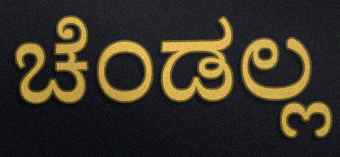
ಚೆಂಡಲ್ಲ